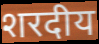
शरदीय